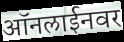
ऑनलाईनवर